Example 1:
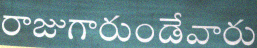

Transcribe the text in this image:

రాజుగారుండేవారు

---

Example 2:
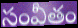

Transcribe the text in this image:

సంవీతం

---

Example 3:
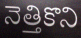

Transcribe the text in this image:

నెత్తికొని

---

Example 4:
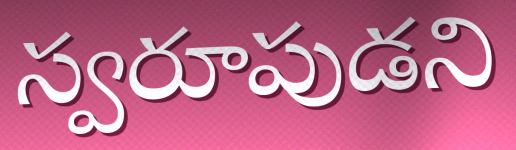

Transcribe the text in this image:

స్వరూపుడని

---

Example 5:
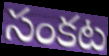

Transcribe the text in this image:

సంకట